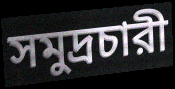
সমুদ্রচারী